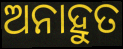
ଅନାହୁତ